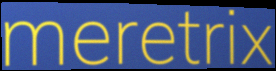
meretrix